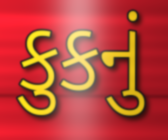
કુકનું